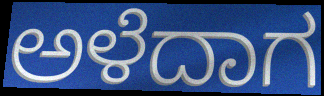
ಅಳೆದಾಗ